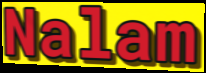
Nalam